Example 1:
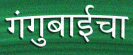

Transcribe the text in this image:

गंगुबाईचा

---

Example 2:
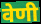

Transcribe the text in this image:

वेणी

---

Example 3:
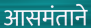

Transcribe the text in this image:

आसमंताने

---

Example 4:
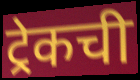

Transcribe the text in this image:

ट्रेकची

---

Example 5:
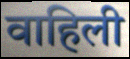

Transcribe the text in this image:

वाहिली